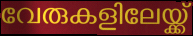
വേരുകളിലേയ്ക്ക്